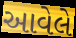
આવેલે